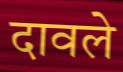
दावले